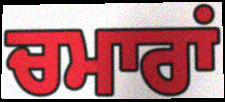
ਚਮਾਰਾਂ